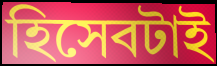
হিসেবটাই